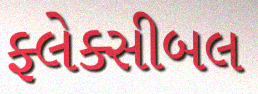
ફ્લેક્સીબલ